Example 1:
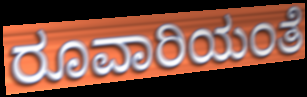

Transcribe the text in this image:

ರೂವಾರಿಯಂತೆ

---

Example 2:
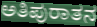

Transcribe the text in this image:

ಅತಿಪುರಾತನ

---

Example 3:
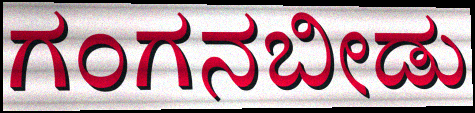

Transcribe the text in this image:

ಗಂಗನಬೀಡು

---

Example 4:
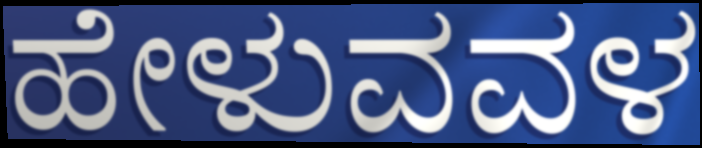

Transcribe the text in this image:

ಹೇಳುವವಳ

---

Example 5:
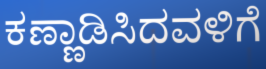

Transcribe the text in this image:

ಕಣ್ಣಾಡಿಸಿದವಳಿಗೆ